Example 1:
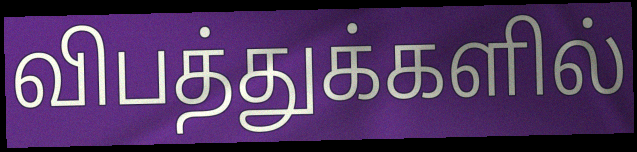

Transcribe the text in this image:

விபத்துக்களில்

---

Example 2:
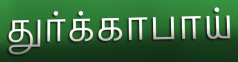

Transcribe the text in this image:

துர்க்காபாய்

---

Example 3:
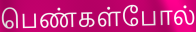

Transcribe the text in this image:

பெண்கள்போல்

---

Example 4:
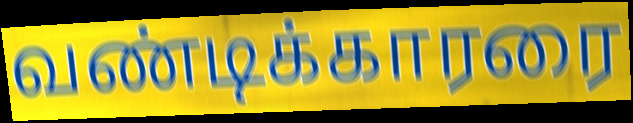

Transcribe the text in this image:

வண்டிக்காரரை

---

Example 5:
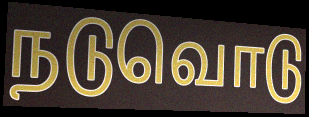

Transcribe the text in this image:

நடுவொடு